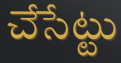
చేసేట్టు